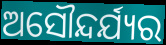
ଅସୌନ୍ଦର୍ଯ୍ୟର